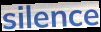
silence